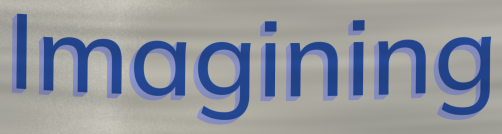
Imagining